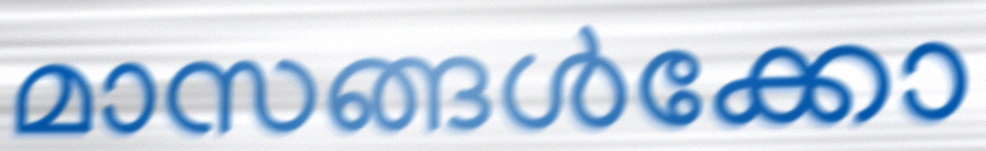
മാസങ്ങൾക്കോ